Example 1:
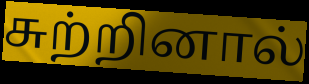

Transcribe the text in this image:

சுற்றினால்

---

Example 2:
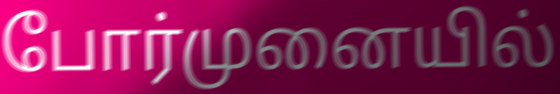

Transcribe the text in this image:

போர்முனையில்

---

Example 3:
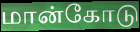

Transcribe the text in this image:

மான்கோடு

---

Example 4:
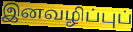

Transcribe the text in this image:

இனவழிப்புப்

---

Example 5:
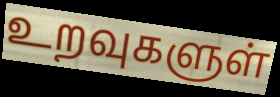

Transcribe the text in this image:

உறவுகளுள்